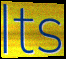
Its